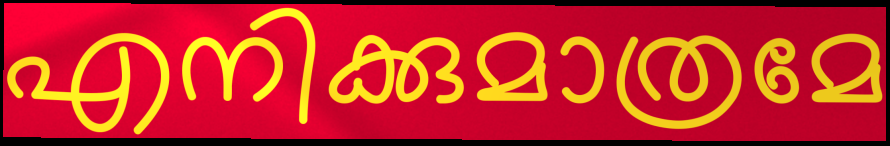
എനിക്കുമാത്രമേ